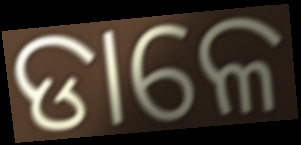
ଡାଳେ